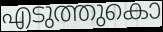
എടുത്തുകൊ